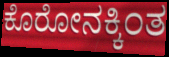
ಕೊರೋನಕ್ಕಿಂತ